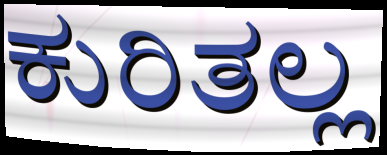
ಕುರಿತಲ್ಲ